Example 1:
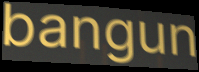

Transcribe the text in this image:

bangun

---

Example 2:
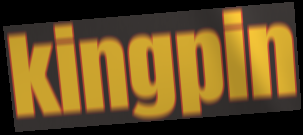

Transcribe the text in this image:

kingpin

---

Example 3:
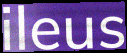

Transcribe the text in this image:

ileus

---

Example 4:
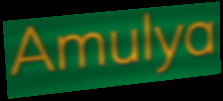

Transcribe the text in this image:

Amulya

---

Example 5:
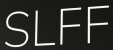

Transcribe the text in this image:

SLFF